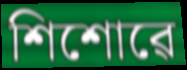
শিশোৱে